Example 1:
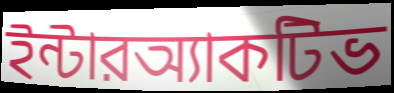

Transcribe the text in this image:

ইন্টারঅ্যাকটিভ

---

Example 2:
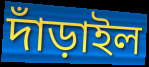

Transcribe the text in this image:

দাঁড়াইল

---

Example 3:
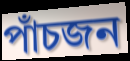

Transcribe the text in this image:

পাঁচজন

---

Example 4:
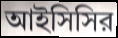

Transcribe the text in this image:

আইসিসির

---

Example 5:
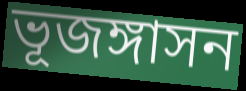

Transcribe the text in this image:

ভূজঙ্গাসন